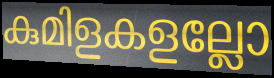
കുമിളകളല്ലോ